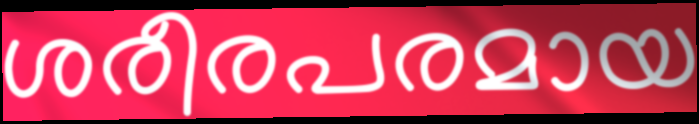
ശരീരപരമായ